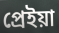
প্রেইয়া